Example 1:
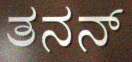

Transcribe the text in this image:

ತನನ್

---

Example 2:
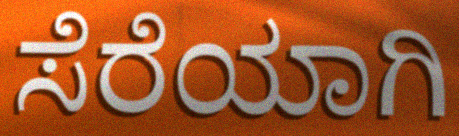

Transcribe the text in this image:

ಸೆರೆಯಾಗಿ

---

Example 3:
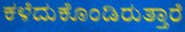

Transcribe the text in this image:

ಕಳೆದುಕೊಂಡಿರುತ್ತಾರೆ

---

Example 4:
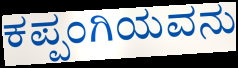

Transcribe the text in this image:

ಕಪ್ಪಂಗಿಯವನು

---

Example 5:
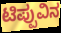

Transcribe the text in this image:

ಟಿಪ್ಪುವಿನ